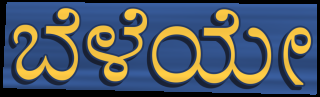
ಬೆಳೆಯೇ